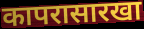
कापरासारखा